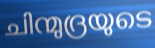
ചിന്മുദ്രയുടെ